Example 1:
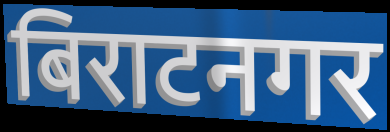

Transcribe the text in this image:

बिराटनगर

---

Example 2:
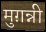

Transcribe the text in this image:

मुग़न्नी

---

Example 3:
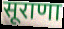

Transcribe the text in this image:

सूराणा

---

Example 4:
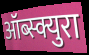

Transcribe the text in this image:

ऑब्स्क्युरा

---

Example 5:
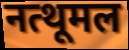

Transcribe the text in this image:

नत्थूमल